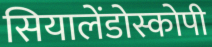
सियालेंडोस्कोपी